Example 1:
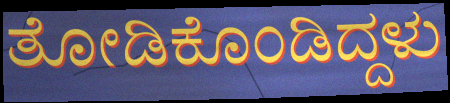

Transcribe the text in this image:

ತೋಡಿಕೊಂಡಿದ್ದಳು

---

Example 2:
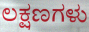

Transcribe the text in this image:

ಲಕ್ಷಣಗಳು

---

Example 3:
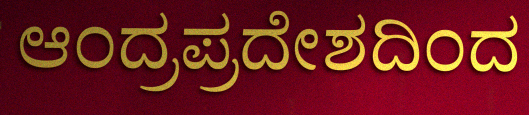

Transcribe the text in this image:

ಆಂದ್ರಪ್ರದೇಶದಿಂದ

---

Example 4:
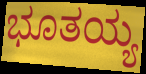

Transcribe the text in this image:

ಭೂತಯ್ಯ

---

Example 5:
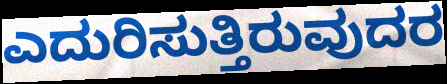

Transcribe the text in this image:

ಎದುರಿಸುತ್ತಿರುವುದರ